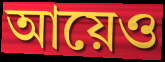
আয়েও